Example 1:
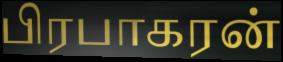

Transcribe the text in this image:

பிரபாகரன்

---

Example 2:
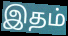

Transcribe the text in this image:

இதம்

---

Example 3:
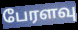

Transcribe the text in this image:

பேரளவு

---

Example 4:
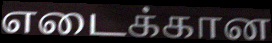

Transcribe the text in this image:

எடைக்கான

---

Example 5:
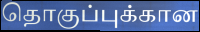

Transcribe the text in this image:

தொகுப்புக்கான